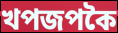
খপজপকৈ